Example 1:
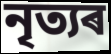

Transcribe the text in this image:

নৃত্যৰ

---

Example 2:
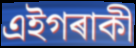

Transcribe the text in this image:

এইগৰাকী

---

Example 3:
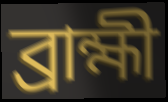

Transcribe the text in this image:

ব্ৰাহ্মী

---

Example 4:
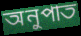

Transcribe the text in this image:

অনুপাত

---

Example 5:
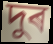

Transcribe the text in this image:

দুৰ